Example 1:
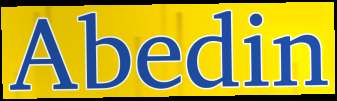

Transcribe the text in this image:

Abedin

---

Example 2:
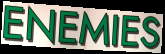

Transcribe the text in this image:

ENEMIES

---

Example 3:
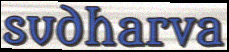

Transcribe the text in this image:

sudharva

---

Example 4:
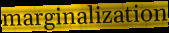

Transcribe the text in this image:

marginalization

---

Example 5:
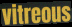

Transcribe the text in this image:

vitreous